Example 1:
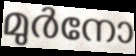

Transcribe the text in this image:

മുർനോ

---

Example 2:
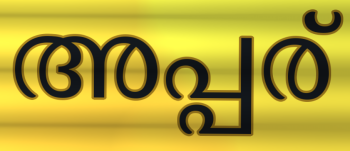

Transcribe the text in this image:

അപ്പര്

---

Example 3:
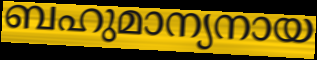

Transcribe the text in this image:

ബഹുമാന്യനായ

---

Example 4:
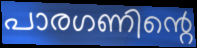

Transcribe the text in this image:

പാരഗണിന്റെ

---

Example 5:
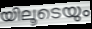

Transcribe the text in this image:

യിലൂടെയും